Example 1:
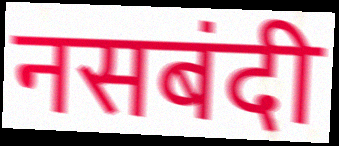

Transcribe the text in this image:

नसबंदी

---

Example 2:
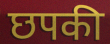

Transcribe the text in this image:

छपकी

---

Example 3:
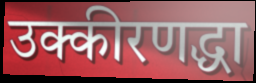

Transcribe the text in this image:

उक्कीरणद्धा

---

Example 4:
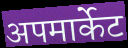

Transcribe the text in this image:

अपमार्केट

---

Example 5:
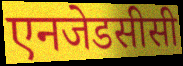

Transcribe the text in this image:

एनजेडसीसी